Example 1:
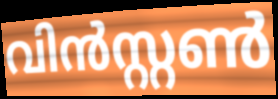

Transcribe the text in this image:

വിൻസ്റ്റൺ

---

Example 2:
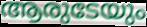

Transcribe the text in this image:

ആരുടേയും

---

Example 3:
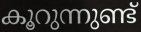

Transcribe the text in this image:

കൂറുന്നുണ്ട്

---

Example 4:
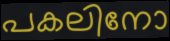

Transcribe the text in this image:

പകലിനോ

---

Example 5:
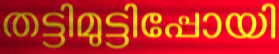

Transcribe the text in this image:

തട്ടിമുട്ടിപ്പോയി